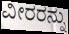
ವೀರರನ್ನು